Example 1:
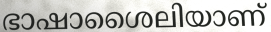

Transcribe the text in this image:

ഭാഷാശൈലിയാണ്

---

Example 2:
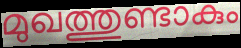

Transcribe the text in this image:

മുഖത്തുണ്ടാകും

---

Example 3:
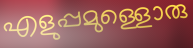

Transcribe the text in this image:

എളുപ്പമുള്ളൊരു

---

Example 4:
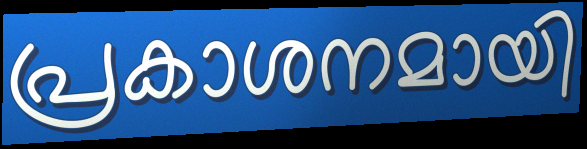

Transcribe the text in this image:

പ്രകാശനമായി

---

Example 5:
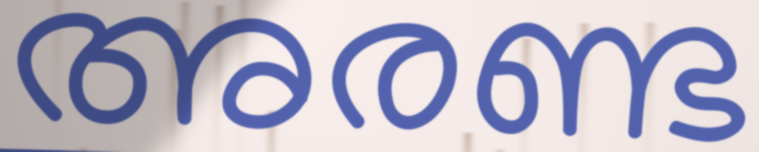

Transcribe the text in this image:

അരണ്ട